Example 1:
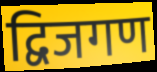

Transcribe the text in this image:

द्विजगण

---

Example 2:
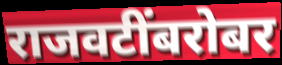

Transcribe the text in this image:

राजवटींबरोबर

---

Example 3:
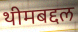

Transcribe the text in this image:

थीमबद्दल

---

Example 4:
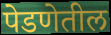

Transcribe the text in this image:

पेडणेतील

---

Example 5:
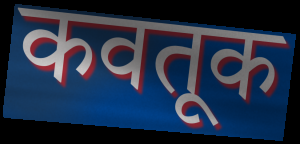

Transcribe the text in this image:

कवतूक